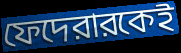
ফেদেরারকেই